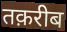
तक़रीब